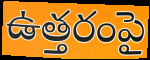
ఉత్తరంపై